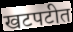
खटपटीत